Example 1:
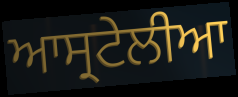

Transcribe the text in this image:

ਆਸ੍ਰਟੇਲੀਆ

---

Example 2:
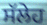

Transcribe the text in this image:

ਸੱਲੇਹ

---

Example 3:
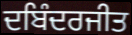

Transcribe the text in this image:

ਦਬਿੰਦਰਜੀਤ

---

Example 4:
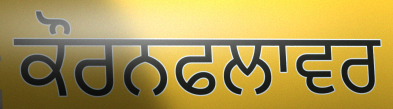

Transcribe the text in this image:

ਕੌਰਨਫਲਾਵਰ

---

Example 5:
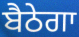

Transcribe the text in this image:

ਬੈਠੇਗਾ